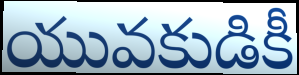
యువకుడికీ